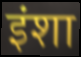
इंशा